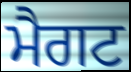
ਮੈਗਟ